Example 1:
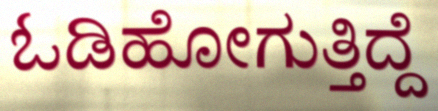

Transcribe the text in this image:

ಓಡಿಹೋಗುತ್ತಿದ್ದೆ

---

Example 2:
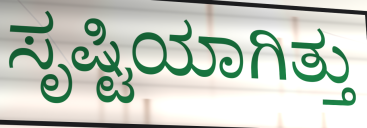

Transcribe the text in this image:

ಸೃಷ್ಟಿಯಾಗಿತ್ತು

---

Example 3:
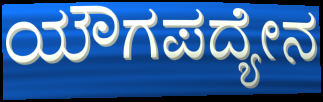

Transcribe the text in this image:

ಯೌಗಪದ್ಯೇನ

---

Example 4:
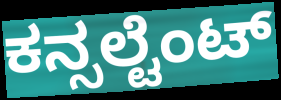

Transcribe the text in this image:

ಕನ್ಸಲ್ಟೆಂಟ್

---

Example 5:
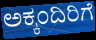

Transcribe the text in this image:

ಅಕ್ಕಂದಿರಿಗೆ